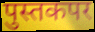
पुस्तकपर